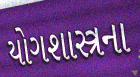
યોગશાસ્ત્રના